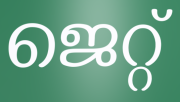
ജെറ്റ്